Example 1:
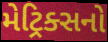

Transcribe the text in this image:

મેટ્રિક્સનો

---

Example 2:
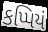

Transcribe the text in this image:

કપ્પિયં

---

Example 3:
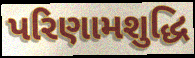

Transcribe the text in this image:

પરિણામશુદ્ધિ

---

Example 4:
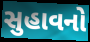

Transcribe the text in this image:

સુહાવનો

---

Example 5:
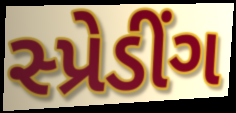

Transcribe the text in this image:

સ્પ્રેડીંગ